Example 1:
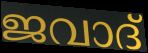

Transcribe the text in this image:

ജവാദ്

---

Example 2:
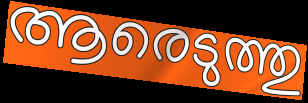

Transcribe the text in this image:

ആരെടുത്തു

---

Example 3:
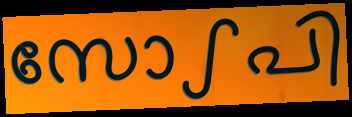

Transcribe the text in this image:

സോഽപി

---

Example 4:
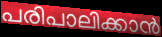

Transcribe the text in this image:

പരിപാലിക്കാൻ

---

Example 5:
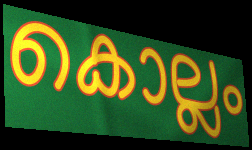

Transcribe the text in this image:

കൊല്ലം